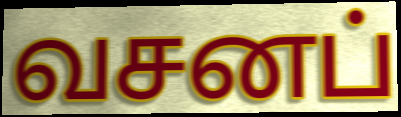
வசனப்